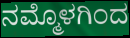
ನಮ್ಮೊಳಗಿಂದ